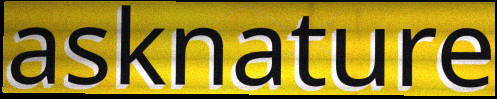
asknature